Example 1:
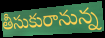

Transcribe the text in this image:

తీసుకురానున్న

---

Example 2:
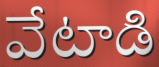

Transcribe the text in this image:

వేటాడి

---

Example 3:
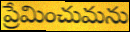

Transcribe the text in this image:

ప్రేమించుమను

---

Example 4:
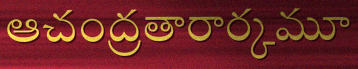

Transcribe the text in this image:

ఆచంద్రతారార్కమూ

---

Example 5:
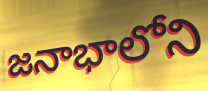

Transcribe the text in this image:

జనాభాలోని